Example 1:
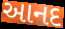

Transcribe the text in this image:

આનદ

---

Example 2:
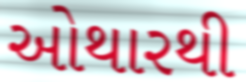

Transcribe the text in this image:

ઓથારથી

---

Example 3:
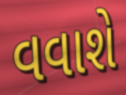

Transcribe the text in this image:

વવાશે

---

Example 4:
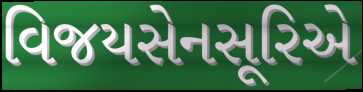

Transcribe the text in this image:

વિજયસેનસૂરિએ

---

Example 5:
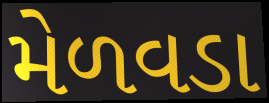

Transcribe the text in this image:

મેળવડા